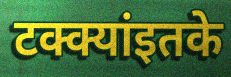
टक्क्यांइतके